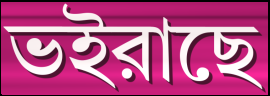
ভইরাছে